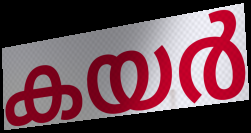
കയർ